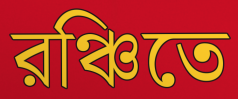
রঞ্চিতে